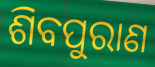
ଶିବପୁରାଣ